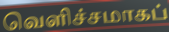
வெளிச்சமாகப்